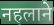
नहलाने